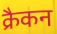
क्रैकन